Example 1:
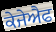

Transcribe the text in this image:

ਕੇਜੇਐਫ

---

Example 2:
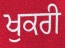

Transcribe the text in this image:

ਖੁਕਰੀ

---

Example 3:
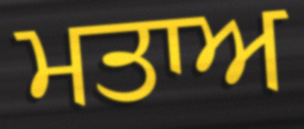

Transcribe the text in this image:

ਮਤਾਅ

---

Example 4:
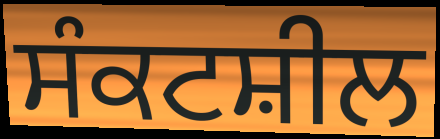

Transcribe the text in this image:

ਸੰਕਟਸ਼ੀਲ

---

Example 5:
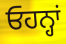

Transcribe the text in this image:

ਓਹਨ੍ਹਾਂ